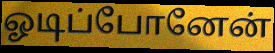
ஓடிப்போனேன்